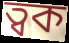
ত্বক